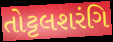
તોટ્ટલશરંગિ